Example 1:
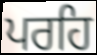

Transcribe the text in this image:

ਪਰਹਿ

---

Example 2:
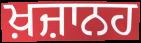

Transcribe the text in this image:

ਖ਼ਜ਼ਾਨਹ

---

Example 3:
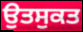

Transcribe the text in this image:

ਉਤਸੁਕਤ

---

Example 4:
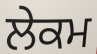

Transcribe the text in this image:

ਲੇਕਮ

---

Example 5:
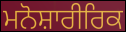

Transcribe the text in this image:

ਮਨੋਸ਼ਾਰੀਰਿਕ